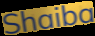
Shaiba